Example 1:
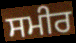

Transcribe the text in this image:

ਸਮੀਰ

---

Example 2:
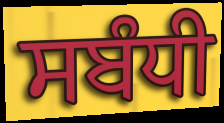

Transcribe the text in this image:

ਸਬੰਧੀ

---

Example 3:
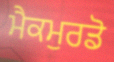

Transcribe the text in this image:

ਮੈਕਮੁਰਡੋ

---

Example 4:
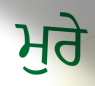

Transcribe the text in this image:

ਮੁਰੇ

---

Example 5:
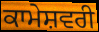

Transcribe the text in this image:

ਕਾਮੇਸ਼ਵਰੀ